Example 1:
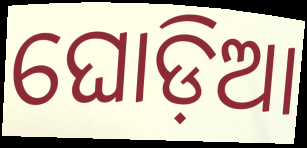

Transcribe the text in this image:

ଘୋଡ଼ିଆ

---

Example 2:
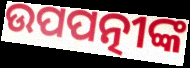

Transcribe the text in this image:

ଉପପତ୍ନୀଙ୍କ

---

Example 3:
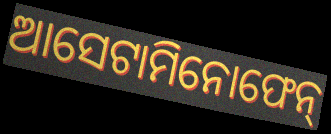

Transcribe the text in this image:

ଆସେଟାମିନୋଫେନ୍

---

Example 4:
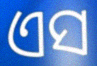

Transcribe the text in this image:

ଏସ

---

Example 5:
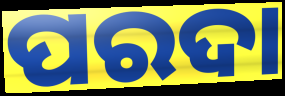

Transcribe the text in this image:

ପରଦା